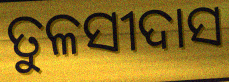
ତୁଳସୀଦାସ